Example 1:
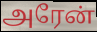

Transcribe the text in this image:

அரேன்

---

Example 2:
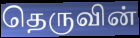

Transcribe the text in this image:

தெருவின்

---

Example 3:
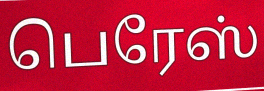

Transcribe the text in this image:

பெரேஸ்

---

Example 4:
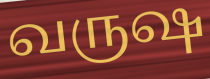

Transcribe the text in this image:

வருஷ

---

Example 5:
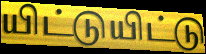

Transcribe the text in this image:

யிட்டுயிட்டு